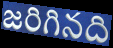
జరిగినది